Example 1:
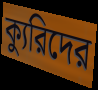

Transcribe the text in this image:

ক্যুরিদের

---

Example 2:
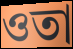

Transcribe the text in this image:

ওতা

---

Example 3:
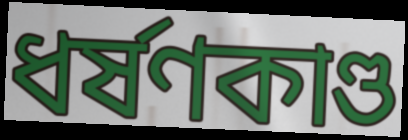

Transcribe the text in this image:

ধর্ষণকাণ্ড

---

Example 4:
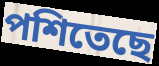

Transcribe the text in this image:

পশিতেছে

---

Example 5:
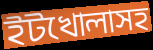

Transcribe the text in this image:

ইটখোলাসহ